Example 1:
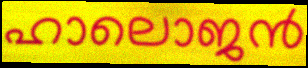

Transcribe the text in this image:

ഹാലൊജൻ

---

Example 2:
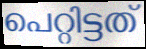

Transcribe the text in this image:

പെറ്റിട്ടത്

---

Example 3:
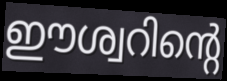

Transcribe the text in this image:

ഈശ്വറിന്റെ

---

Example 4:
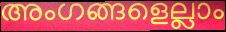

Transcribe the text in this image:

അംഗങ്ങളെല്ലാം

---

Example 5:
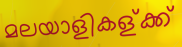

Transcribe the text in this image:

മലയാളികള്ക്ക്